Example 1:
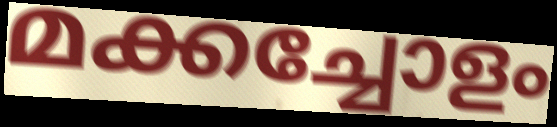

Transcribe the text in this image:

മക്കച്ചോളം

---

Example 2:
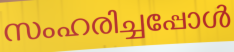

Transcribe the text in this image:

സംഹരിച്ചപ്പോൾ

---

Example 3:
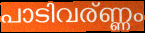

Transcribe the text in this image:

പാടിവര്ണ്ണം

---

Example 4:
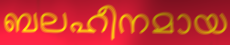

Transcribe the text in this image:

ബലഹീനമായ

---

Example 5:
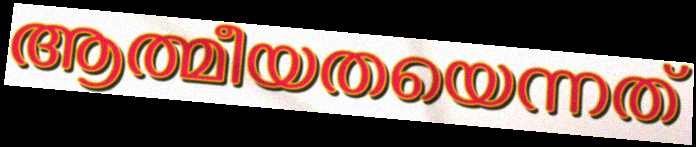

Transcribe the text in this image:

ആത്മീയതയെന്നത്